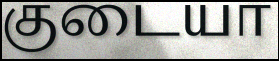
குடையா